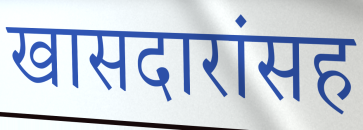
खासदारांसह